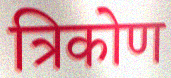
त्रिकोण